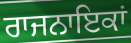
ਰਾਜਨਾਇਕਾਂ